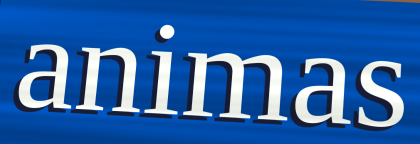
animas